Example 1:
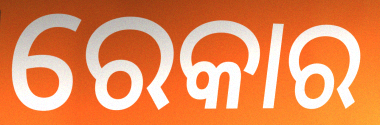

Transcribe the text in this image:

ରେକାର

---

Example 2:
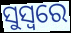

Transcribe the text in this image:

ସୁସ୍ୱରେ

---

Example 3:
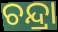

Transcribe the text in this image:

ଚନ୍ଦ୍ରା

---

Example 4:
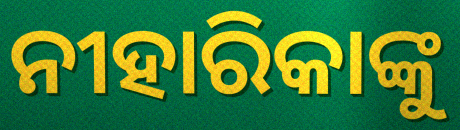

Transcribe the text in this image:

ନୀହାରିକାଙ୍କୁ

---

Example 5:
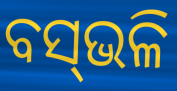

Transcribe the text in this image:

ବସ୍‌ଭଳି